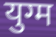
युग्म